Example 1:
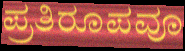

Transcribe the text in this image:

ಪ್ರತಿರೂಪವೂ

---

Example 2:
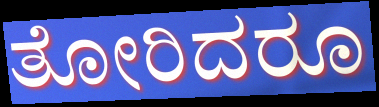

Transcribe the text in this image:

ತೋರಿದರೂ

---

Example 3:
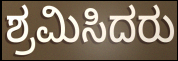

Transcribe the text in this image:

ಶ್ರಮಿಸಿದರು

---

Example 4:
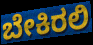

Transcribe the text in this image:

ಬೇಕಿರಲಿ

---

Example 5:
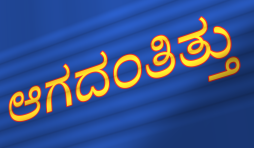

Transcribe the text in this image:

ಆಗದಂತಿತ್ತು